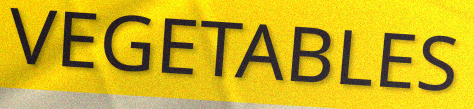
VEGETABLES